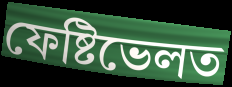
ফেষ্টিভেলত